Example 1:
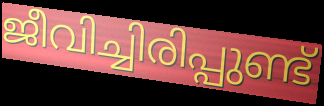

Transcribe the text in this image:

ജീവിച്ചിരിപ്പുണ്ട്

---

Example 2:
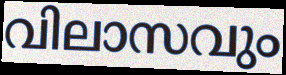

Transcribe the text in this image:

വിലാസവും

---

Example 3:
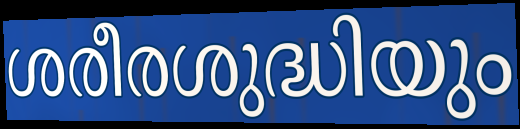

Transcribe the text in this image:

ശരീരശുദ്ധിയും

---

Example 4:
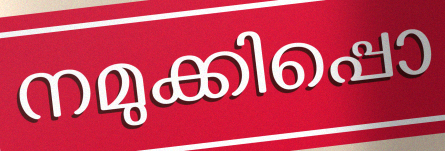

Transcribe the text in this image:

നമുക്കിപ്പൊ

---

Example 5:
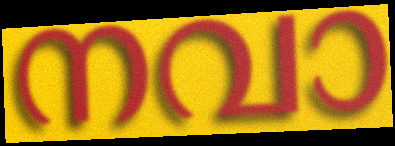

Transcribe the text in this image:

നവാ